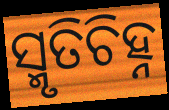
ସ୍ମୃତିଚିହ୍ନ